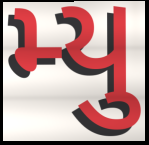
મ્યુ